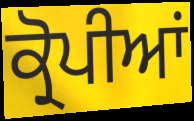
ਕ੍ਰੋਪੀਆਂ